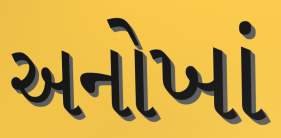
અનોખાં